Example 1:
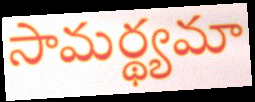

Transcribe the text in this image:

సామర్థ్యమా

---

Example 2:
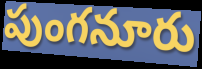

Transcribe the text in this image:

పుంగనూరు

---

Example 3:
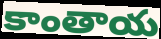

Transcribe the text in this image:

కాంతాయ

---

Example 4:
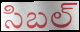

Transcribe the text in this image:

సిబల్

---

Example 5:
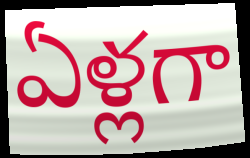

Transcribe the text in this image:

ఏళ్లగా